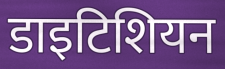
डाइटिशियन